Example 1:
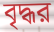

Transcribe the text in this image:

বৃদ্ধর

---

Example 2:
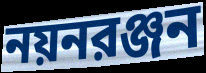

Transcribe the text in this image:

নয়নরঞ্জন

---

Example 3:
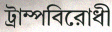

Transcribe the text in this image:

ট্রাম্পবিরোধী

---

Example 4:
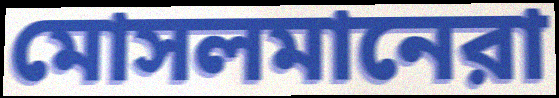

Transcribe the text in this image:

মোসলমানেরা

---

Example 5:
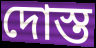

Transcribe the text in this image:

দোস্ত